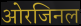
ओरजिनल